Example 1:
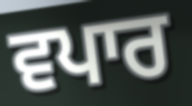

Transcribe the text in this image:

ਵਪਾਰ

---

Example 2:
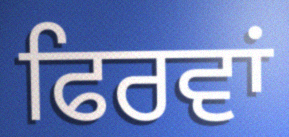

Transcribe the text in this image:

ਫਿਰਵਾਂ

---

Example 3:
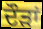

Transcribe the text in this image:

ਦੌੜਾਂ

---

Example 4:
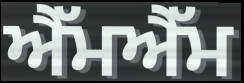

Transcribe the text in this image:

ਐੱਮਐੱਮ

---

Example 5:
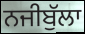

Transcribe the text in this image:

ਨਜੀਬੁੱਲਾ